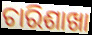
ଚାରିଶାଖା